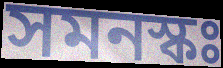
সমনস্কঃ